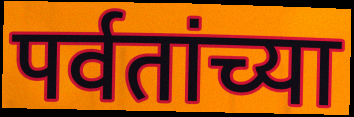
पर्वतांच्या